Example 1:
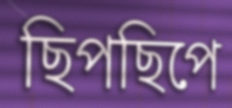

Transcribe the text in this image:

ছিপছিপে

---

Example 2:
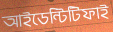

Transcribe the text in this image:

আইডেন্টিটিফাই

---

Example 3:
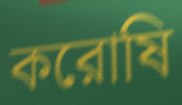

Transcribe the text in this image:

করোষি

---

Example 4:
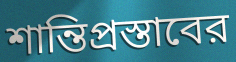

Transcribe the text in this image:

শান্তিপ্রস্তাবের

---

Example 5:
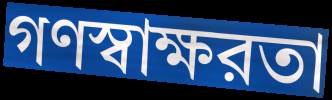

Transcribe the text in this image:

গণস্বাক্ষরতা